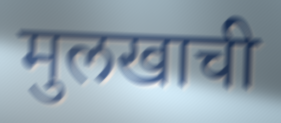
मुलखाची